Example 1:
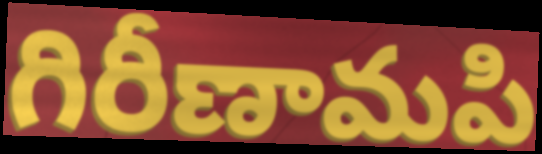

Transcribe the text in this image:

గిరీణామపి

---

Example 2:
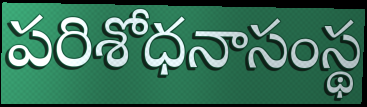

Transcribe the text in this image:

పరిశోధనాసంస్థ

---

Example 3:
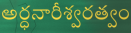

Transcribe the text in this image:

అర్ధనారీశ్వరత్వం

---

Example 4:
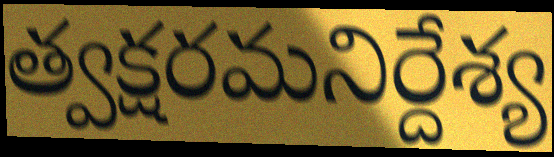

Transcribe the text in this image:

త్వక్షరమనిర్దేశ్య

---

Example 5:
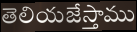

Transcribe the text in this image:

తెలియజేస్తాము